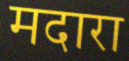
मदारा